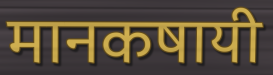
मानकषायी